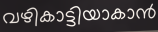
വഴികാട്ടിയാകാൻ